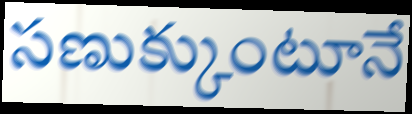
సణుక్కుంటూనే